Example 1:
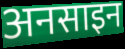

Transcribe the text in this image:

अनसाइन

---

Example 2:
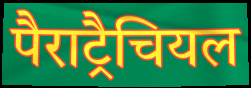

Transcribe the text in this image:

पैराट्रैचियल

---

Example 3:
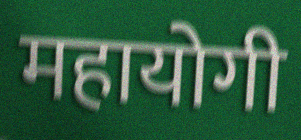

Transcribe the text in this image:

महायोगी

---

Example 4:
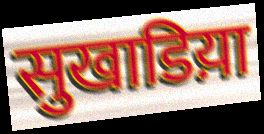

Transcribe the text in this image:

सुखाडिय़ा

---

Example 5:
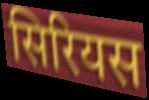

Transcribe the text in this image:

सिरियस